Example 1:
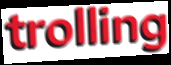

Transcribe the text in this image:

trolling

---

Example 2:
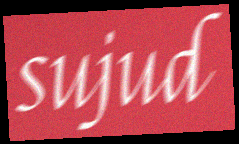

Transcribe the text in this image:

sujud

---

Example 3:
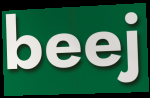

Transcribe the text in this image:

beej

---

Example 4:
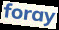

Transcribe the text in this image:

foray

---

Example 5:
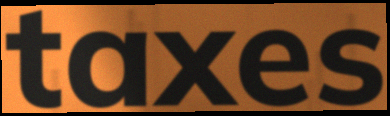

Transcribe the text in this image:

taxes